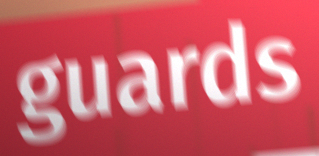
guards